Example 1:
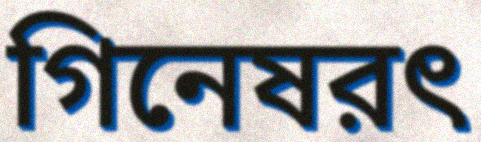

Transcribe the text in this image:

গিনেষরৎ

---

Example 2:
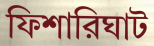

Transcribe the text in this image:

ফিশারিঘাট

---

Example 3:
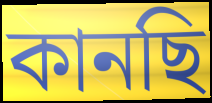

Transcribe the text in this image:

কানছি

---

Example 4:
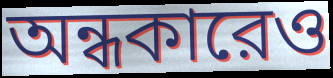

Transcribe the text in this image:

অন্ধকারেও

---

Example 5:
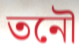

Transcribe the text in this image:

তনৌ